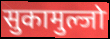
सुकामुल्जो